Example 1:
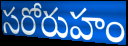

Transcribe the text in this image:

సరోరుహం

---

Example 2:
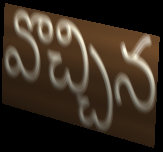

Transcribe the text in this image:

వొచ్చిన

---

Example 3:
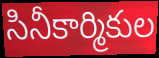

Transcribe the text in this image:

సినీకార్మికుల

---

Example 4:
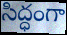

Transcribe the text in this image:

సిద్ధంగా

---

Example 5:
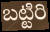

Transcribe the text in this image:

బట్టిరి